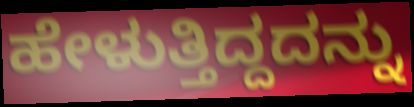
ಹೇಳುತ್ತಿದ್ದದನ್ನು